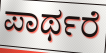
ಪಾರ್ಥರೆ